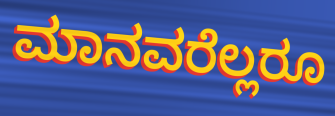
ಮಾನವರೆಲ್ಲರೂ